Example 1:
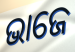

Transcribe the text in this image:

ଭାଜେ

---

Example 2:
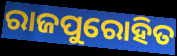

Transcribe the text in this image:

ରାଜପୁରୋହିତ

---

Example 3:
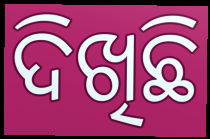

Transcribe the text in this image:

ଦିଖିଛି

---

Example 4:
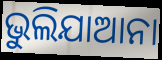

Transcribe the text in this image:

ଭୁଲିଯାଆନା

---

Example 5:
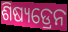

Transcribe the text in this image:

ଶିଷ୍ୟଡ୍ରେନ